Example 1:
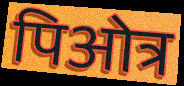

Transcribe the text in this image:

पिओत्र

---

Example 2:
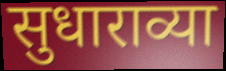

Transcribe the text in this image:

सुधाराव्या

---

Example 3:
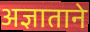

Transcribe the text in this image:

अज्ञाताने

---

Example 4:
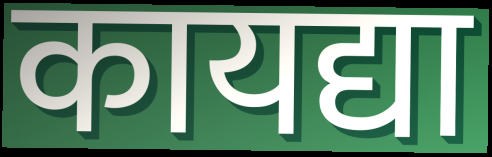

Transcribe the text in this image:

कायद्या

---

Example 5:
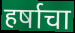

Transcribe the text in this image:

हर्षाचा